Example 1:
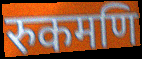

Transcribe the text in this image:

रुकमणि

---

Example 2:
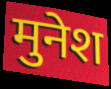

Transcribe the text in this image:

मुनेश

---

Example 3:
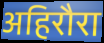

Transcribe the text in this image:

अहिरौरा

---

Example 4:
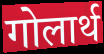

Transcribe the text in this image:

गोलार्थ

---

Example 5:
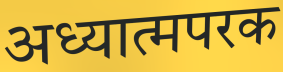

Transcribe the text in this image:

अध्यात्मपरक